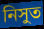
নিসুত